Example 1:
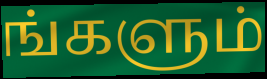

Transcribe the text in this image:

ங்களும்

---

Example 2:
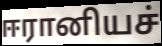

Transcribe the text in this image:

ஈரானியச்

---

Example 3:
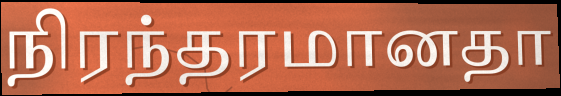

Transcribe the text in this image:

நிரந்தரமானதா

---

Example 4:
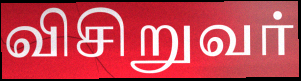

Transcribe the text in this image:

விசிறுவர்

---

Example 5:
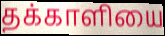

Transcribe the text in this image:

தக்காளியை